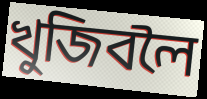
খুজিবলৈ